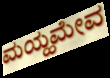
ಮಯ್ಹಮೇವ